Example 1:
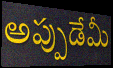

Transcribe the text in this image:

అప్పుడేమీ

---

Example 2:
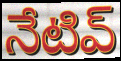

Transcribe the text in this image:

నేటివ్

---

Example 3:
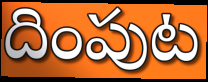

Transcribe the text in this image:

దింపుట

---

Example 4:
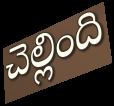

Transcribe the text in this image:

చెల్లింది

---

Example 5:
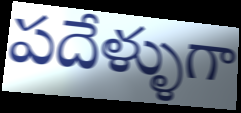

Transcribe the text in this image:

పదేళ్ళుగా